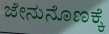
ಜೇನುನೊಣಕ್ಕೆ